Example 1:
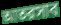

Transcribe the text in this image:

আতরসাব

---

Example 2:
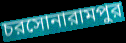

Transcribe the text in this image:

চরসোনারামপুর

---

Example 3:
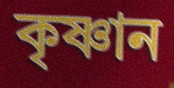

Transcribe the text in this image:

কৃষ্ণান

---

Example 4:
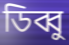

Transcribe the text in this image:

ডিব্বু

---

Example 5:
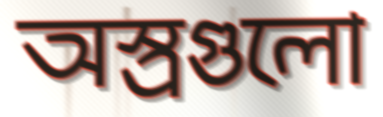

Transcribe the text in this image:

অস্ত্রগুলো